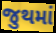
જુથમાં